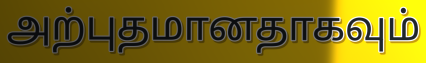
அற்புதமானதாகவும்